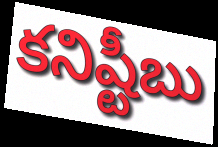
కనిష్టీబు